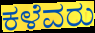
ಕಳೆವರು